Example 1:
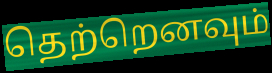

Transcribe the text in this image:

தெற்றெனவும்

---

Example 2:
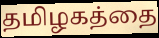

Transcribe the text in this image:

தமிழகத்தை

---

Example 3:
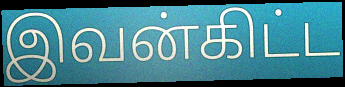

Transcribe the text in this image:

இவன்கிட்ட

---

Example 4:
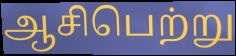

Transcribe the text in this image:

ஆசிபெற்று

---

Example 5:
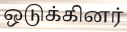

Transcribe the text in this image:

ஒடுக்கினர்